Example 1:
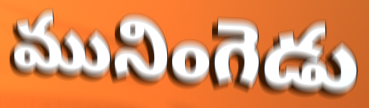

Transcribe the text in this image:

మునింగెడు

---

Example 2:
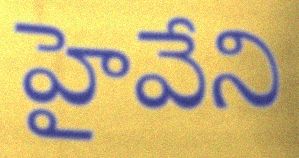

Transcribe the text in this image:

హైవేని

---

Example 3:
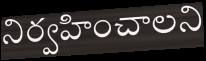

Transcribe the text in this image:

నిర్వహించాలని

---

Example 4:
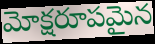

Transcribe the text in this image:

మోక్షరూపమైన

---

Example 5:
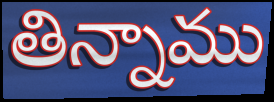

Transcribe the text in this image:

తిన్నాము